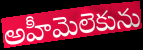
అహీమెలెకును